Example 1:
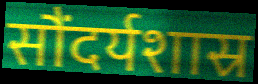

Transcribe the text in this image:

सौंदर्यशास्र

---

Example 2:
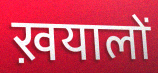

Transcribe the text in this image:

ख़यालों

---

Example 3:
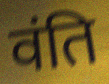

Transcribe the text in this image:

वंति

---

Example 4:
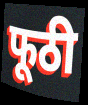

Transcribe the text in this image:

फूठी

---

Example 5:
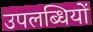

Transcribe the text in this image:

उपलब्धियों